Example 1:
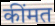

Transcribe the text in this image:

कींमत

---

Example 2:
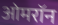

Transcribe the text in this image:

ओमरॉन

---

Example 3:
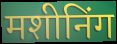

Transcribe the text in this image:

मशीनिंग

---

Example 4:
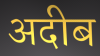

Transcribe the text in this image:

अदीब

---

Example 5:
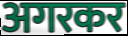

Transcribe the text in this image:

अगरकर